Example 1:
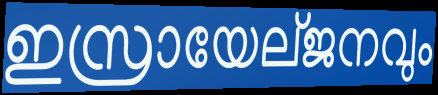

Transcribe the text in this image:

ഇസ്രായേല്ജനവും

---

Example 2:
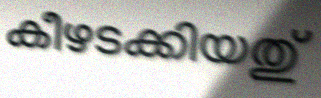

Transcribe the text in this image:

കീഴടക്കിയതു്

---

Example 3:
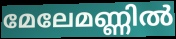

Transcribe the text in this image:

മേലേമണ്ണിൽ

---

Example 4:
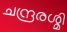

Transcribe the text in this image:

ചന്ദ്രരശ്മി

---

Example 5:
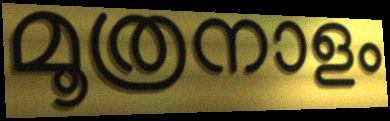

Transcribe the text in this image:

മൂത്രനാളം